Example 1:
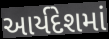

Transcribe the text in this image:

આર્યદેશમાં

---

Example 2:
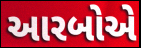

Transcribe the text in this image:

આરબોએ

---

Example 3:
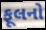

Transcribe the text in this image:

ફૂલનો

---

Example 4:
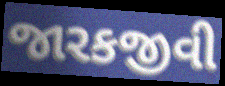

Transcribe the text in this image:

જારકજીવી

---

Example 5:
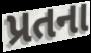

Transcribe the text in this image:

પ્રતના